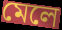
মেলে